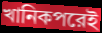
খানিকপরেই